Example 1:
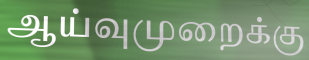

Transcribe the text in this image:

ஆய்வுமுறைக்கு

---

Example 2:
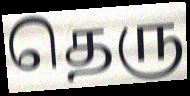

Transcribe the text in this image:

தெரு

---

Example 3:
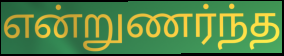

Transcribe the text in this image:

என்றுணர்ந்த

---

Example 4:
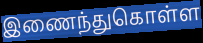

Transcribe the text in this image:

இணைந்துகொள்ள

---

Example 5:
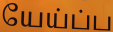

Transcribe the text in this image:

யேய்ப்ப